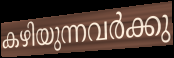
കഴിയുന്നവർക്കു